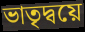
ভাতৃদ্বয়ে